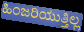
ಹಿಂಜರಿಯುತ್ತಿಲ್ಲ